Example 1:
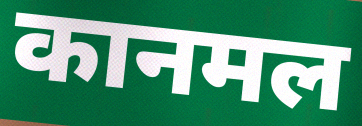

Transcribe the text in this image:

कानमल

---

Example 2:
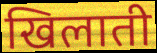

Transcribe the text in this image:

खिलाती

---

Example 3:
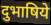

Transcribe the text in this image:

दुभाषिये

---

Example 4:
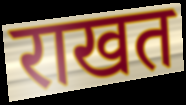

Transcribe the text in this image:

राखत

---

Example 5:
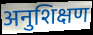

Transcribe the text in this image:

अनुशिक्षण